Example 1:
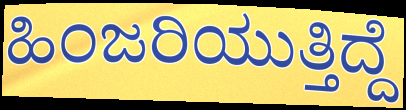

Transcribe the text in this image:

ಹಿಂಜರಿಯುತ್ತಿದ್ದೆ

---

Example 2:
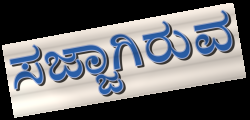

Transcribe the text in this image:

ಸಜ್ಜಾಗಿರುವ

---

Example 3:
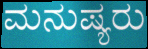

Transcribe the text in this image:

ಮನುಷ್ಯರು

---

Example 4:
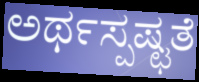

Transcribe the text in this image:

ಅರ್ಥಸ್ಪಷ್ಟತೆ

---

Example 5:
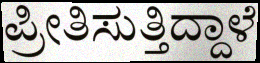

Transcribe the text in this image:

ಪ್ರೀತಿಸುತ್ತಿದ್ದಾಳೆ